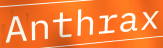
Anthrax